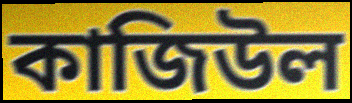
কাজিউল